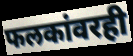
फलकांवरही